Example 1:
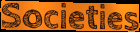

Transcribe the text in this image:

Societies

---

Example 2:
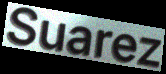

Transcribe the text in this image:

Suarez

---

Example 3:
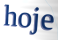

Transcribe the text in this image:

hoje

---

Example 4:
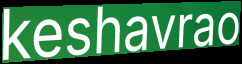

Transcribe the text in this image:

keshavrao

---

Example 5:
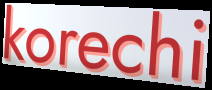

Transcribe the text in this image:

korechi